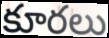
కూరలు